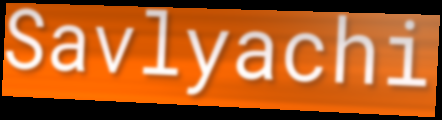
Savlyachi